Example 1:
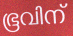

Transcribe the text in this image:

ഭൂവിന്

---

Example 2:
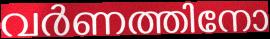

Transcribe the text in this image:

വർണത്തിനോ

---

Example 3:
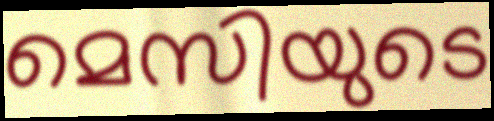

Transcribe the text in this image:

മെസിയുടെ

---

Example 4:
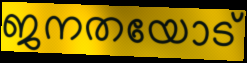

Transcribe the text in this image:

ജനതയോട്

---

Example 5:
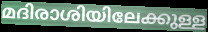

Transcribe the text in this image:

മദിരാശിയിലേക്കുള്ള